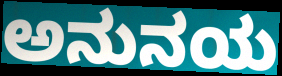
ಅನುನಯ